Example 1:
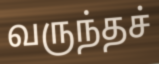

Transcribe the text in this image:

வருந்தச்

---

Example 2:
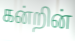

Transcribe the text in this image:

கன்றின்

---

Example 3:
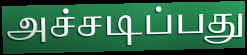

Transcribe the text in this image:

அச்சடிப்பது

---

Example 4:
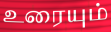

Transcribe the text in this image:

உரையும்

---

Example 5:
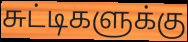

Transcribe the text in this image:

சுட்டிகளுக்கு